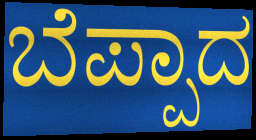
ಬೆಪ್ಪಾದ